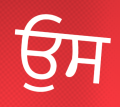
ਓੁਸ